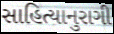
સાહિત્યાનુરાગી